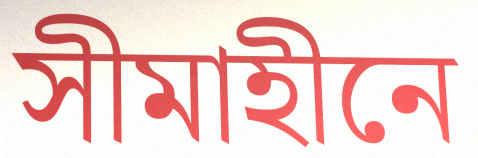
সীমাহীনে